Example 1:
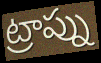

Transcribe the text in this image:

ట్రాప్ను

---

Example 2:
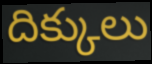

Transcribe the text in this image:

దిక్కులు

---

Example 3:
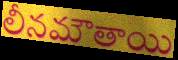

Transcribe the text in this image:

లీనమౌతాయి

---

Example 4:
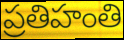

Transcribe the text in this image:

ప్రతిహంతి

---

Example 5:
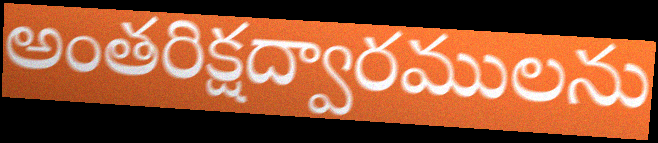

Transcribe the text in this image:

అంతరిక్షద్వారములను